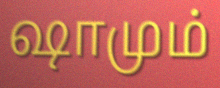
ஷாமும்